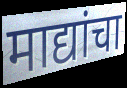
माद्यांचा